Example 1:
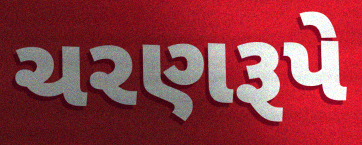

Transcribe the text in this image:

ચરણરૂપે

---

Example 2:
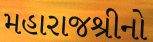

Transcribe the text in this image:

મહારાજશ્રીનો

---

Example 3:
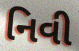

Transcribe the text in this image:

નિવી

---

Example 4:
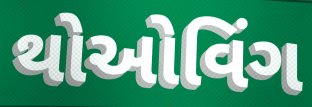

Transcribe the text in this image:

થોઓવિંગ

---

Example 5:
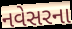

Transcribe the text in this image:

નવેસરના